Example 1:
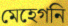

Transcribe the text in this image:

মেহেগনি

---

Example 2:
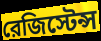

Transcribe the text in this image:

রেজিস্টেন্স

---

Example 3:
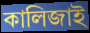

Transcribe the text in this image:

কালিজাই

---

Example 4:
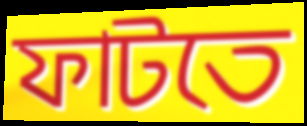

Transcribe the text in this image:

ফাটতে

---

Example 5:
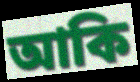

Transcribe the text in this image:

আকি